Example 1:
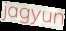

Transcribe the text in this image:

jagyun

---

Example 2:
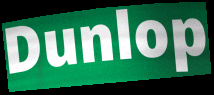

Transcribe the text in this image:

Dunlop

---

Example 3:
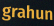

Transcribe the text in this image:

grahun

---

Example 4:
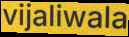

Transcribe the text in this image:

vijaliwala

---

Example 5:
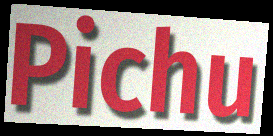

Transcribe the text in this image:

Pichu